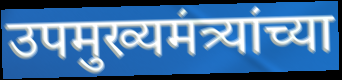
उपमुख्यमंत्र्यांच्या